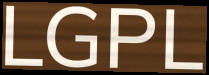
LGPL